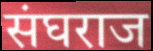
संघराज